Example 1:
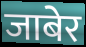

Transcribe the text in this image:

जाबेर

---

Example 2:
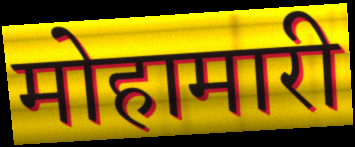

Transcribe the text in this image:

मोहामारी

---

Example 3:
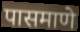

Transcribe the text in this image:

पासमाणे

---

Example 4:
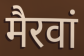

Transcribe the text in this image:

मैरवां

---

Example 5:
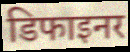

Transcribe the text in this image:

डिफाइनर